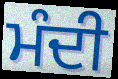
ਮੰਦੀ